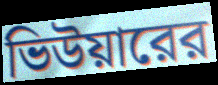
ভিউয়ারের